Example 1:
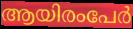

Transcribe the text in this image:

ആയിരംപേർ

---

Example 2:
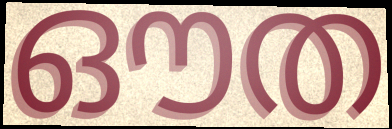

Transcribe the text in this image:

ഔത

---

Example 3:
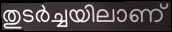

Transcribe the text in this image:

തുടർച്ചയിലാണ്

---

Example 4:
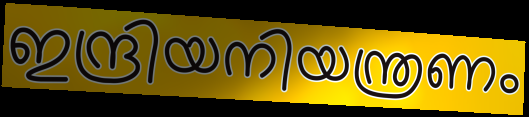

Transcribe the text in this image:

ഇന്ദ്രിയനിയന്ത്രണം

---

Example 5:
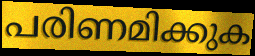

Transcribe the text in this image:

പരിണമിക്കുക